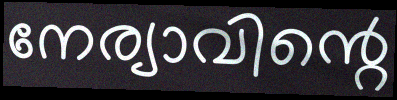
നേര്യാവിന്റെ